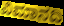
ವಿಮಾನದಿ